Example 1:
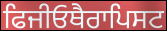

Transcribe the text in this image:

ਫਿਜੀਓਥੈਰਾਪਿਸਟ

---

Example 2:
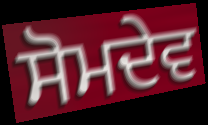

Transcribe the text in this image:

ਸੋਮਦੇਵ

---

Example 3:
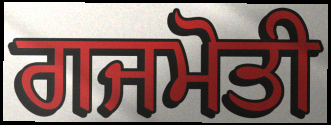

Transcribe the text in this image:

ਗਜਮੋਤੀ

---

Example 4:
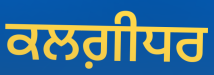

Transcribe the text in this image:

ਕਲਗ਼ੀਧਰ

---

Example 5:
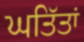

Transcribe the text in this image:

ਘਤਿੱਤਾਂ